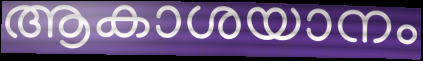
ആകാശയാനം